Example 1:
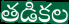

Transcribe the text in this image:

తడికల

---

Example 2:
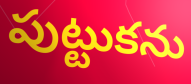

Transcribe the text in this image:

పుట్టుకను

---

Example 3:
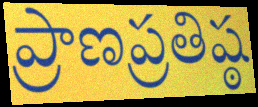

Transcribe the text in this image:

ప్రాణప్రతిష్ఠ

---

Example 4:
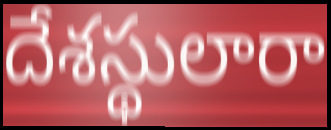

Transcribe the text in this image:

దేశస్థులారా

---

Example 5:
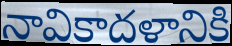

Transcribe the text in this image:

నావికాదళానికి